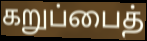
கறுப்பைத்